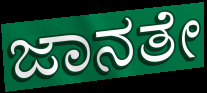
ಜಾನತೇ